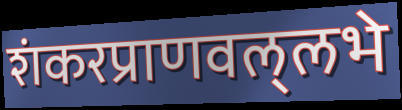
शंकरप्राणवल्लभे